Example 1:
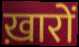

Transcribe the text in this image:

ख़ारों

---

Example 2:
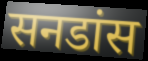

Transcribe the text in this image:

सनडांस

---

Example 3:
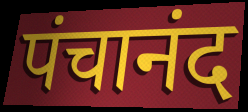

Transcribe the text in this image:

पंचानंद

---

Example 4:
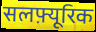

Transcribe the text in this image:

सलफ़्यूरिक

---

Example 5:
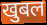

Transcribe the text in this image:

खुबल